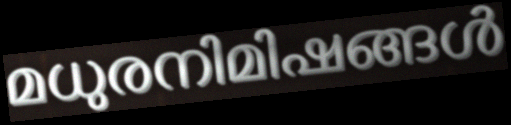
മധുരനിമിഷങ്ങൾ